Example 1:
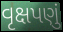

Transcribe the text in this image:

વૃક્ષપણું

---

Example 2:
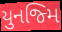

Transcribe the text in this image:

યુનજ્મિ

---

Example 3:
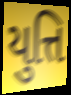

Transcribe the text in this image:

યુત્તિ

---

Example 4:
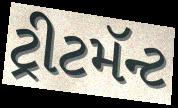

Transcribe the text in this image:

ટ્રીટમૅન્ટ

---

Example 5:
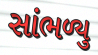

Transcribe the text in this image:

સાંભળ્યુ